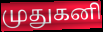
முதுகனி